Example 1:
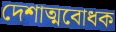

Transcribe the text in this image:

দেশাত্মবোধক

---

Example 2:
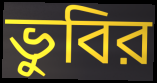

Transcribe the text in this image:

ভুবির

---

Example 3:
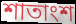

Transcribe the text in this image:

শাতাংশ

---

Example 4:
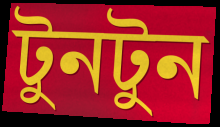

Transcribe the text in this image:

টুনটুন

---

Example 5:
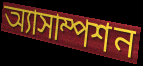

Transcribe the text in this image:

অ্যাসাম্পশন